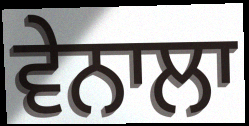
ਵੇਨਾਲਾ